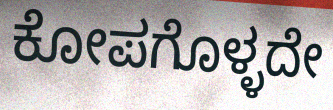
ಕೋಪಗೊಳ್ಳದೇ